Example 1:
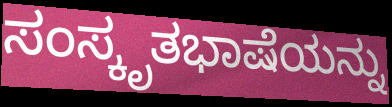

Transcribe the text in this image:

ಸಂಸ್ಕೃತಭಾಷೆಯನ್ನು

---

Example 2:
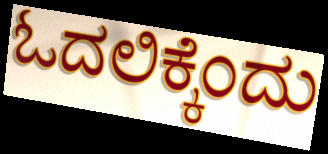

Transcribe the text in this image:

ಓದಲಿಕ್ಕೆಂದು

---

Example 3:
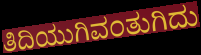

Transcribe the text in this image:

ತಿದಿಯುಗಿವಂತುಗಿದು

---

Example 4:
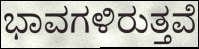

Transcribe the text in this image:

ಭಾವಗಳಿರುತ್ತವೆ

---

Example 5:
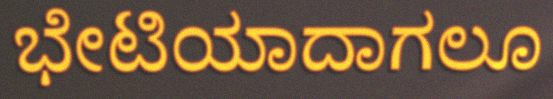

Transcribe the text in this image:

ಭೇಟಿಯಾದಾಗಲೂ